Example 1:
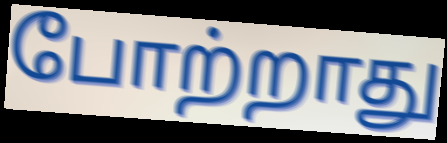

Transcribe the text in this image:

போற்றாது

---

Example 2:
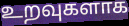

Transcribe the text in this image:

உறவுகளாக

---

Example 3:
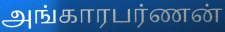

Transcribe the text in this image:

அங்காரபர்ணன்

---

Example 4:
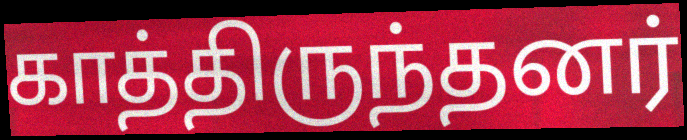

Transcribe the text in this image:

காத்திருந்தனர்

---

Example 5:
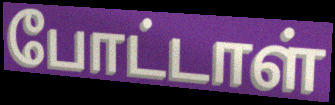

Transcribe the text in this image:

போட்டாள்